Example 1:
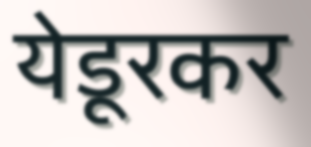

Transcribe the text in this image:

येडूरकर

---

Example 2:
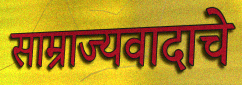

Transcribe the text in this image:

साम्राज्यवादाचे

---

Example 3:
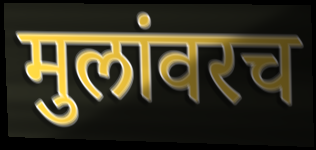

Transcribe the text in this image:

मुलांवरच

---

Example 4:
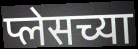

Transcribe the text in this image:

प्लेसच्या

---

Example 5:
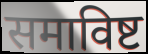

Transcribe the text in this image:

समाविष्ट